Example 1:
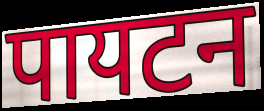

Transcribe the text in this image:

पायटन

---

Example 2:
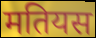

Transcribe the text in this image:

मतियस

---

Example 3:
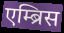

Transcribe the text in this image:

एम्ब्रिस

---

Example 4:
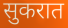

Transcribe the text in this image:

सुकरात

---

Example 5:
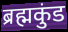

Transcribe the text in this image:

ब्रह्मकुंड